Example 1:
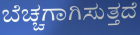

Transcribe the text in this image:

ಬೆಚ್ಚಗಾಗಿಸುತ್ತದೆ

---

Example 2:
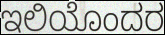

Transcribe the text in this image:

ಇಲಿಯೊಂದರ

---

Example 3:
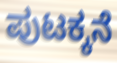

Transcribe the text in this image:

ಪುಟಕ್ಕನೆ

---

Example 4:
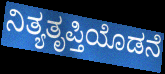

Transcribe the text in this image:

ನಿತ್ಯತೃಪ್ತಿಯೊಡನೆ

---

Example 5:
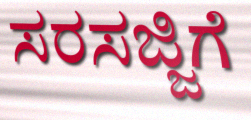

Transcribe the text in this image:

ಸರಸಜ್ಜಿಗೆ